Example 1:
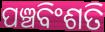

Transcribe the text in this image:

ପଞ୍ଚବିଂଶତି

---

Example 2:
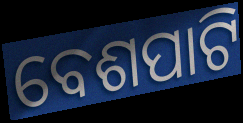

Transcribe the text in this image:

ବେଶପାଟି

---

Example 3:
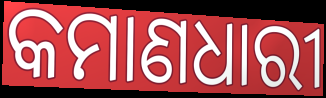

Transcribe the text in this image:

କମାଣଧାରୀ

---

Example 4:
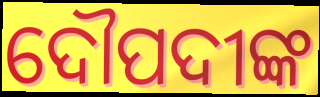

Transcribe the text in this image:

ଦୌପଦୀଙ୍କ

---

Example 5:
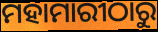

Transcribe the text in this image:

ମହାମାରୀଠାରୁ